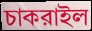
চাকরাইল